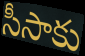
సీసాకు